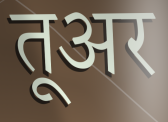
तूअर